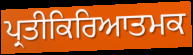
ਪ੍ਰਤੀਕਿਰਿਆਤਮਕ